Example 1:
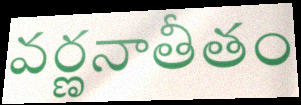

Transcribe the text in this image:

వర్ణనాతీతం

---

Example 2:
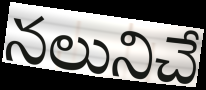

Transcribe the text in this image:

నలునిచే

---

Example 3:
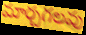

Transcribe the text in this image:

మార్చగలవు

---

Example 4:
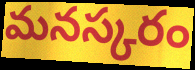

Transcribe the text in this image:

మనస్కరం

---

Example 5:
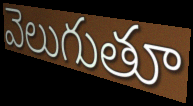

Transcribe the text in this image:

వెలుగుతూ